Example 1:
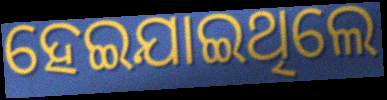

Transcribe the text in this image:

ହେଇଯାଇଥିଲେ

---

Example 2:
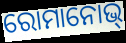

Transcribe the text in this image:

ରୋମାନୋଭ୍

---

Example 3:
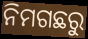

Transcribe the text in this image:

ନିମଗଛରୁ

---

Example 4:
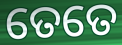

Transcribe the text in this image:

ତେତେ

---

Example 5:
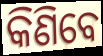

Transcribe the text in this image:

କିଣିବେ